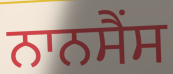
ਨਾਨਸੈਂਸ